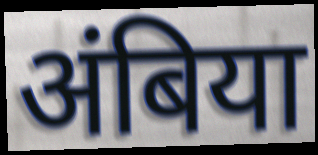
अंबिया